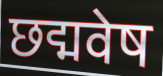
छद्मवेष